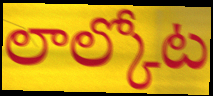
లాల్కోట